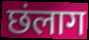
छंलाग